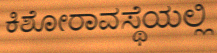
ಕಿಶೋರಾವಸ್ಥೆಯಲ್ಲಿ